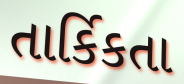
તાર્કિકતા